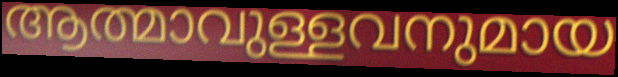
ആത്മാവുള്ളവനുമായ